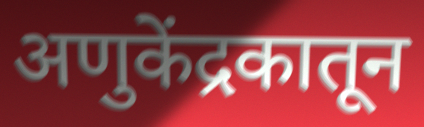
अणुकेंद्रकातून